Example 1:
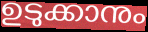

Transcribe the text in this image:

ഉടുക്കാനും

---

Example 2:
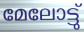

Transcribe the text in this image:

മേലോട്ടു്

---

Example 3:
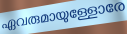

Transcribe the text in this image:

ഏവരുമായുള്ളോരേ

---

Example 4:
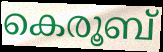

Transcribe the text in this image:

കെരൂബ്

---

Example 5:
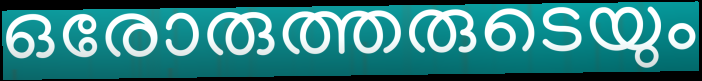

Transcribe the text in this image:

ഒരോരുത്തരുടെയും